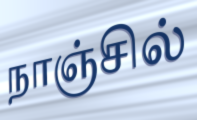
நாஞ்சில்